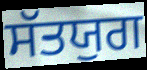
ਸੱਤਯੁਗ